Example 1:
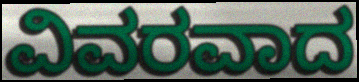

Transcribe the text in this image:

ವಿವರವಾದ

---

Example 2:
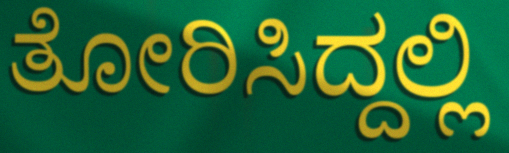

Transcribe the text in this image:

ತೋರಿಸಿದ್ದಲ್ಲಿ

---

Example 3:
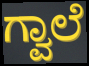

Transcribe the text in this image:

ಗ್ವಾಲೆ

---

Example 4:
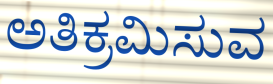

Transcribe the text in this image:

ಅತಿಕ್ರಮಿಸುವ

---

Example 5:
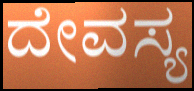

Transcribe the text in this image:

ದೇವಸ್ಯ